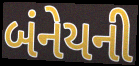
બંનેયની